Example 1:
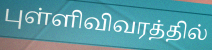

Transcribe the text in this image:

புள்ளிவிவரத்தில்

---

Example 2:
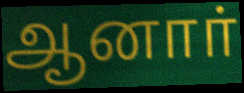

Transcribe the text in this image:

ஆனார்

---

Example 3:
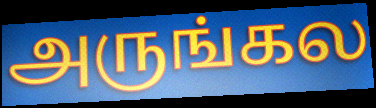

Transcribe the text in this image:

அருங்கல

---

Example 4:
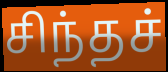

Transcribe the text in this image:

சிந்தச்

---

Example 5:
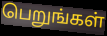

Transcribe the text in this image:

பெறுங்கள்